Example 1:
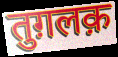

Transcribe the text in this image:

तुग़लक़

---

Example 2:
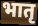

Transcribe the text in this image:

भातृ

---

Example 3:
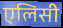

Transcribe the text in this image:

एलिसी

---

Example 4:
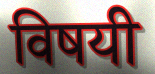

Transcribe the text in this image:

विषयी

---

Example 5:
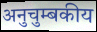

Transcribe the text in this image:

अनुचुम्बकीय